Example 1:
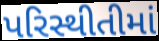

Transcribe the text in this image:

પરિસ્થીતીમાં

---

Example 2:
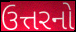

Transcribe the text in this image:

ઉત્તરનો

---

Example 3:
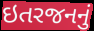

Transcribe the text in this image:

ઇતરજનનું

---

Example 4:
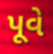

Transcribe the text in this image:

પૂવે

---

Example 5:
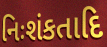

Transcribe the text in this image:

નિઃશંકતાદિ